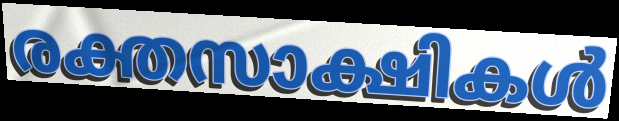
രക്തസാക്ഷികൾ